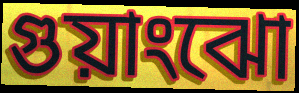
গুয়াংঝো